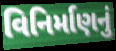
વિનિર્માણનું